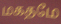
மகதமே